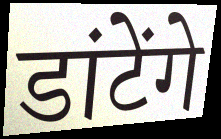
डांटेंगे